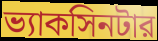
ভ্যাকসিনটার